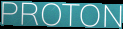
PROTON